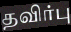
தவிர்பு